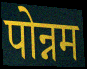
पोन्नम